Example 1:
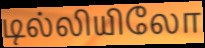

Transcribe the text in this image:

டில்லியிலோ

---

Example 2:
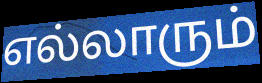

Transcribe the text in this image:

எல்லாரும்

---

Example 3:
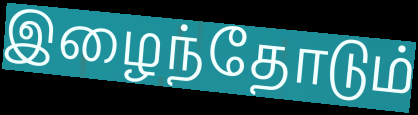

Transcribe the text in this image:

இழைந்தோடும்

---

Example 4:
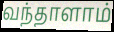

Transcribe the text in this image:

வந்தாளாம்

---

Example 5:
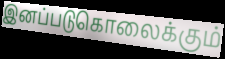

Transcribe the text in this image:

இனப்படுகொலைக்கும்